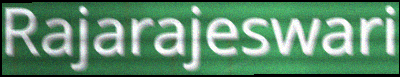
Rajarajeswari